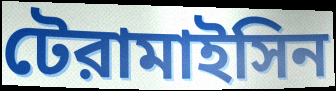
টেরামাইসিন